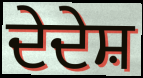
ਦੇਦੇਸ਼